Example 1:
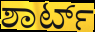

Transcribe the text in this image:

ಶಾರ್ಟ್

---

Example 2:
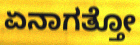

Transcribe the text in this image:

ಏನಾಗತ್ತೋ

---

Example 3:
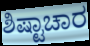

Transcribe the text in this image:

ಶಿಷ್ಟಾಚಾರ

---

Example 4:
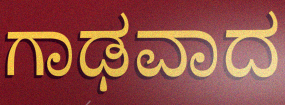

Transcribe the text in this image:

ಗಾಢವಾದ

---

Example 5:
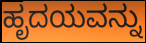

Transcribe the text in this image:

ಹೃದಯವನ್ನು